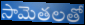
సామెతలతో